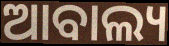
ଆବାଲ୍ୟ